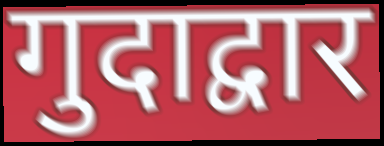
गुदाद्वार